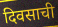
दिवसाची